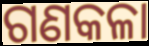
ଗଣକଳା